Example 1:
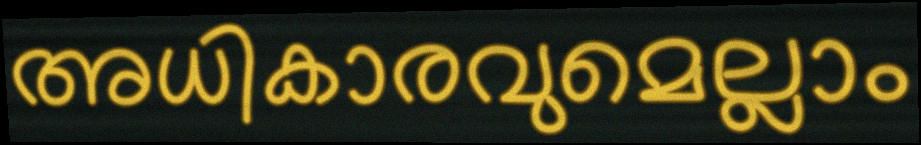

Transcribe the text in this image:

അധികാരവുമെല്ലാം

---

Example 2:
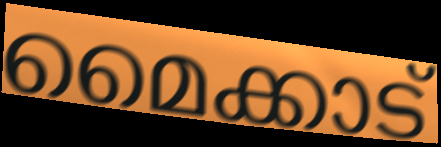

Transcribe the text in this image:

മൈക്കാട്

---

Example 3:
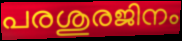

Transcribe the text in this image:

പരശുരജിനം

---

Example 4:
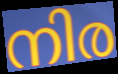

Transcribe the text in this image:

നിര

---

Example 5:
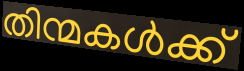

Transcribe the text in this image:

തിന്മകൾക്ക്